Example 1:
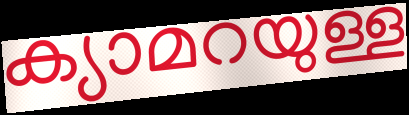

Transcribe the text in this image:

ക്യാമറയുള്ള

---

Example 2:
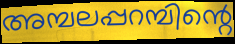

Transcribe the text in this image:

അമ്പലപ്പറമ്പിന്റെ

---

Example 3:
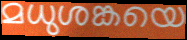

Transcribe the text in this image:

മധുശങ്കയെ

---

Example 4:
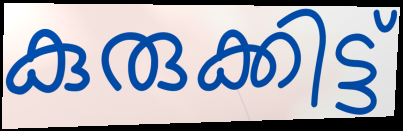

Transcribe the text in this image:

കുരുക്കിട്ട്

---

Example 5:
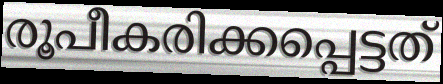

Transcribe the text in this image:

രൂപീകരിക്കപ്പെട്ടത്